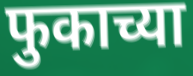
फुकाच्या